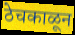
ठेचकाळून